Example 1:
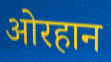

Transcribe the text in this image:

ओरहान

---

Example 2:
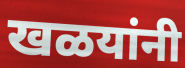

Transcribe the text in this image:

खळयांनी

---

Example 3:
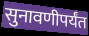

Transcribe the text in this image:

सुनावणीपर्यंत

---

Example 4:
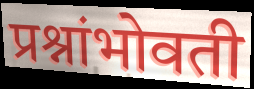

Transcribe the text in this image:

प्रश्नांभोवती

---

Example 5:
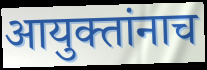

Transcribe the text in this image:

आयुक्तांनाच